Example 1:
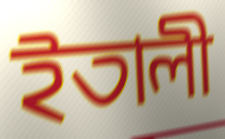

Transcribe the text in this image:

ইতালী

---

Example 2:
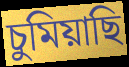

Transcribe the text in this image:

চুমিয়াছি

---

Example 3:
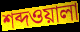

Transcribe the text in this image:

শব্দওয়ালা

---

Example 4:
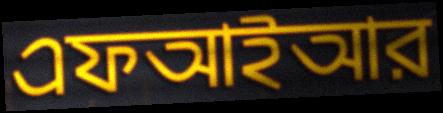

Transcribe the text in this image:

এফআইআর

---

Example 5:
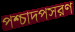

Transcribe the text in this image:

পশ্চাদপসরণ